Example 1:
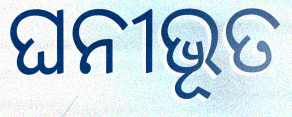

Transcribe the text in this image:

ଘନୀଭୂତ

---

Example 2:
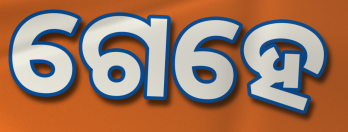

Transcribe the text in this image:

ଗେହେ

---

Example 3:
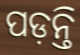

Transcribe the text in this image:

ପଡ଼ନ୍ତି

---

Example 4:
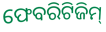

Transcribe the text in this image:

ଫେବରିଟିଜିମ୍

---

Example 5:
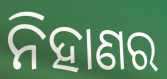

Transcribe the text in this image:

ନିହାଣର